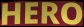
HERO